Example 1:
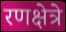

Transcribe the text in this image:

रणक्षेत्रे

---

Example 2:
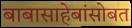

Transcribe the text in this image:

बाबासाहेबांसोबत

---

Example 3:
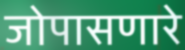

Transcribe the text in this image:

जोपासणारे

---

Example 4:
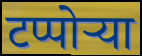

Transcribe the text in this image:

टप्पोऱ्या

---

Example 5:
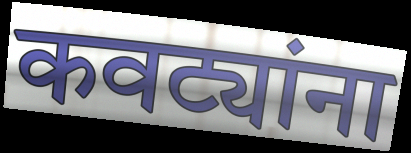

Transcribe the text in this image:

कवट्यांना